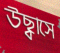
উছ্বাসে